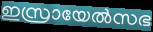
ഇസ്രായേൽസഭ